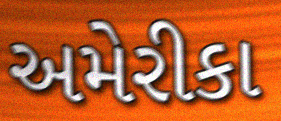
અમેરીકા